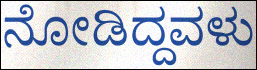
ನೋಡಿದ್ದವಳು